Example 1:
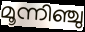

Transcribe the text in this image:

മൂന്നിഞ്ചു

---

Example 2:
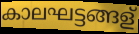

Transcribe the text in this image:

കാലഘട്ടങ്ങള്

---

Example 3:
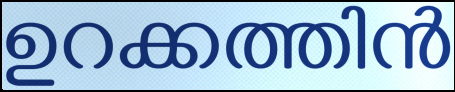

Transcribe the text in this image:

ഉറക്കത്തിൻ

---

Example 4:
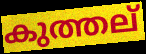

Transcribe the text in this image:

കുത്തല്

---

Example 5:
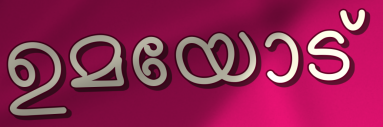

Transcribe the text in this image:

ഉമയോട്